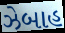
ઝેબાહ